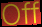
Off